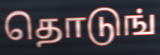
தொடுங்